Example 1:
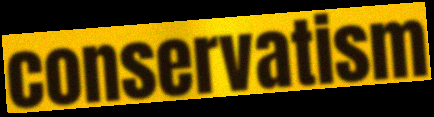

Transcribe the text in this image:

conservatism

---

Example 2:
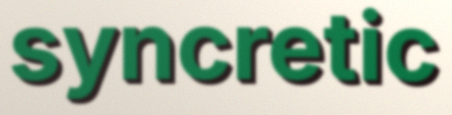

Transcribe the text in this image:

syncretic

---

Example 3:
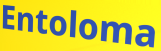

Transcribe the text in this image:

Entoloma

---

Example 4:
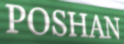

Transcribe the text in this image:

POSHAN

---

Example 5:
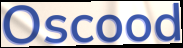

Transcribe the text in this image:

Oscood